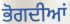
ਭੋਗਦੀਆਂ